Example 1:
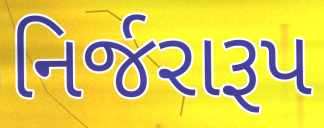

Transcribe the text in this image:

નિર્જરારૂપ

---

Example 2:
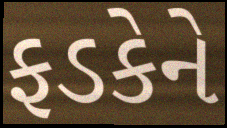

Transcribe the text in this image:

ફડકેને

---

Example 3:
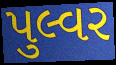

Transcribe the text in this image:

પુલ્વર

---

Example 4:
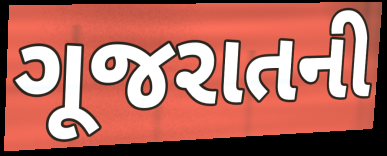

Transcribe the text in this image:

ગૂજરાતની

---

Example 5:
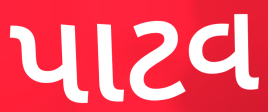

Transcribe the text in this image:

પાટવ